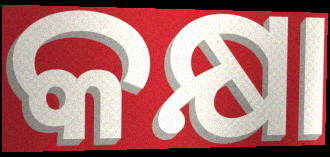
କକ୍ଷା